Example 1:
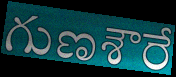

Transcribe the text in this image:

గుణశౌరే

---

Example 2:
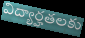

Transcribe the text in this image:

విద్యార్హతలకు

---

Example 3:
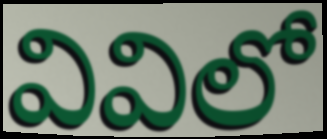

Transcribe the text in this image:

వివిలో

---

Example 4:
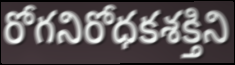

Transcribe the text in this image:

రోగనిరోధకశక్తిని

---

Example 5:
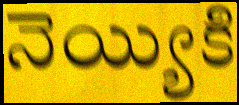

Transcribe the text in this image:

నెయ్యికి